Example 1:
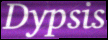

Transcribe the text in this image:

Dypsis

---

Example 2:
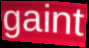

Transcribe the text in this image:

gaint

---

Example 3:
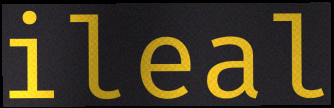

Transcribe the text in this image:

ileal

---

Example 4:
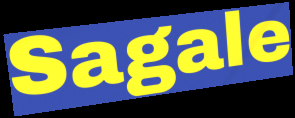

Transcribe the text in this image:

Sagale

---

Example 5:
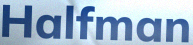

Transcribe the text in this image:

Halfman